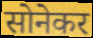
सोनेकर